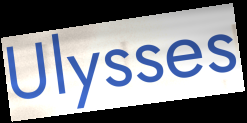
Ulysses